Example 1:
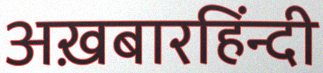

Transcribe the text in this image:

अख़बारहिंन्दी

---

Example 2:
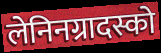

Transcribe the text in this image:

लेनिनग्रादस्को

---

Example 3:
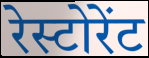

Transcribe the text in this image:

रेस्‍टोरेंट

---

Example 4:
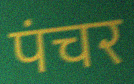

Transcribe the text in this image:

पंचर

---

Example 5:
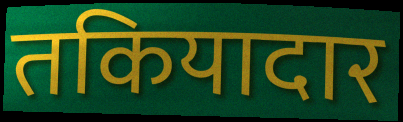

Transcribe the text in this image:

तकियादार